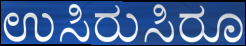
ಉಸಿರುಸಿರೂ